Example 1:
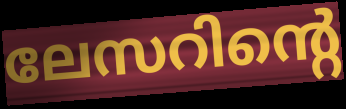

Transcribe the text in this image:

ലേസറിന്റെ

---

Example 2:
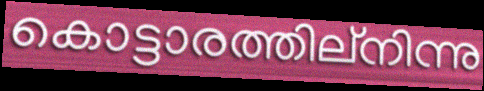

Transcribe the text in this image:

കൊട്ടാരത്തില്നിന്നു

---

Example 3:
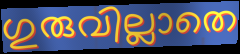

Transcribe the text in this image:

ഗുരുവില്ലാതെ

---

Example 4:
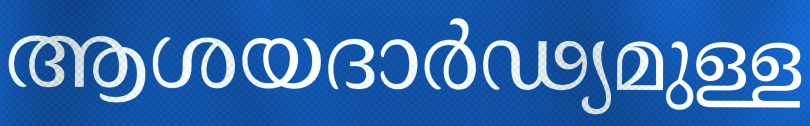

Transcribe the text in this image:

ആശയദാർഢ്യമുള്ള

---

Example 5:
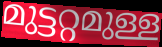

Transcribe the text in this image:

മുട്ടറ്റമുള്ള